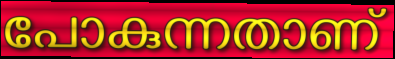
പോകുന്നതാണ്